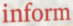
inform